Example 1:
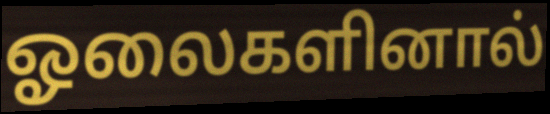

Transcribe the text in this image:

ஓலைகளினால்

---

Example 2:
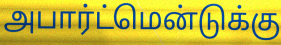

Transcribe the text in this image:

அபார்ட்மென்டுக்கு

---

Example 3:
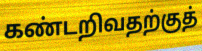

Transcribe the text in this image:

கண்டறிவதற்குத்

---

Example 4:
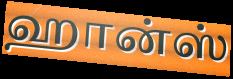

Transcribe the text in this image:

ஹான்ஸ்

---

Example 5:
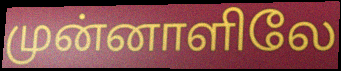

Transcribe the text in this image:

முன்னாளிலே